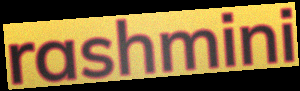
rashmini